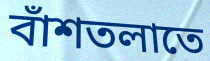
বাঁশতলাতে